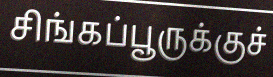
சிங்கப்பூருக்குச்